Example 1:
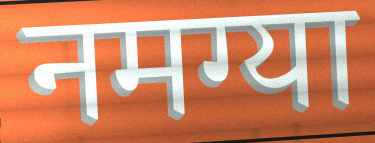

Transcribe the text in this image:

नमग्या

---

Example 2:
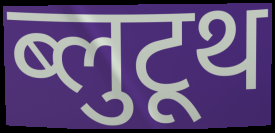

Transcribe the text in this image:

ब्लुटूथ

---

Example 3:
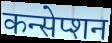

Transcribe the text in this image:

कन्सेप्शन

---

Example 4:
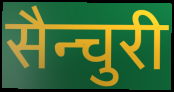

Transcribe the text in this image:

सैन्चुरी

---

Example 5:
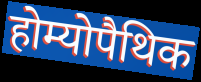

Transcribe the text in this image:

होम्योपैथिक